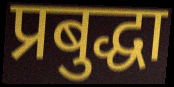
प्रबुद्धा